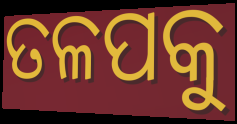
ତଳପକୁ